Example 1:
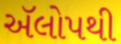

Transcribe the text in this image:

ઍલોપથી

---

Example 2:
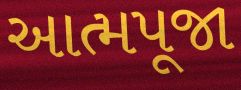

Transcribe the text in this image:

આત્મપૂજા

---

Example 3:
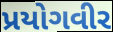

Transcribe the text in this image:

પ્રયોગવીર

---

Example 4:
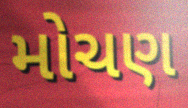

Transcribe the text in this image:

મોચણ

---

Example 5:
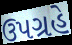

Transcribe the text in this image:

ઉપગ્રહે